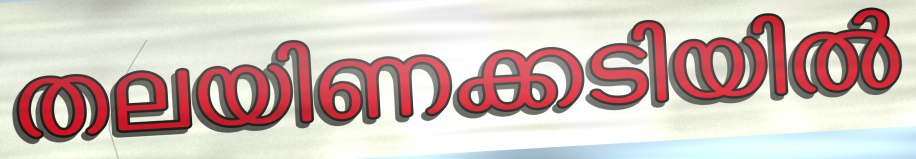
തലയിണക്കടിയിൽ